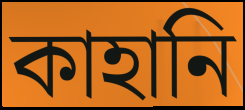
কাহানি